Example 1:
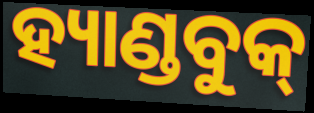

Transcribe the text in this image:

ହ୍ୟାଣ୍ଡବୁକ୍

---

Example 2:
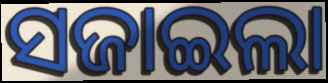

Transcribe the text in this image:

ସଜାଇଲା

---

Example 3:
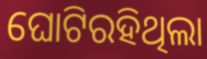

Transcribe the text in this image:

ଘୋଟିରହିଥିଲା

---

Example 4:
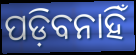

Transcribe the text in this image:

ପଡ଼ିବନାହିଁ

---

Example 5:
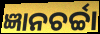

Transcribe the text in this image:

ଜ୍ଞାନଚର୍ଚ୍ଚା